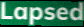
Lapsed